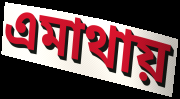
এমাথায়